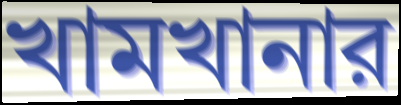
খামখানার